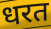
धरत